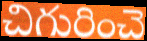
చిగురించె